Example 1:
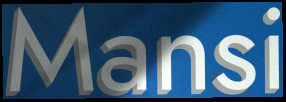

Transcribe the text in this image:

Mansi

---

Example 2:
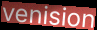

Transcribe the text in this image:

venision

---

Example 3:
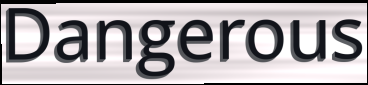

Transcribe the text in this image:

Dangerous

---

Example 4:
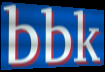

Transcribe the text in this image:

bbk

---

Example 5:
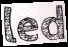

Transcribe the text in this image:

led